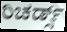
ರಿಚರ್ಡ್ಸ್